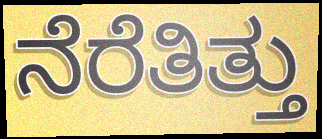
ನೆರೆತಿತ್ತು